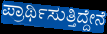
ಪ್ರಾರ್ಥಿಸುತ್ತಿದ್ದೇನೆ